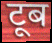
टूब